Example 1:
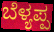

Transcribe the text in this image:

ಬೆಳ್ಯಪ್ಪ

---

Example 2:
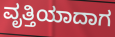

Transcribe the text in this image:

ವೃತ್ತಿಯಾದಾಗ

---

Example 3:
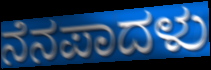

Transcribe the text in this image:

ನೆನಪಾದಳು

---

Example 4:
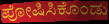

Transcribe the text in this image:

ಪೋಷಿಸಿಕೊಂಡು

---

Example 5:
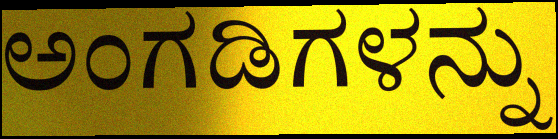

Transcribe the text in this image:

ಅಂಗಡಿಗಳನ್ನು